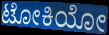
ಟೋಕಿಯೋ